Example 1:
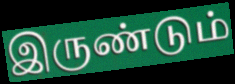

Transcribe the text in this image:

இருண்டும்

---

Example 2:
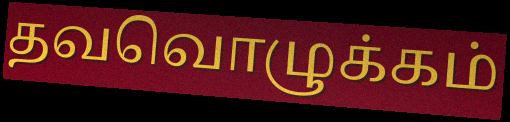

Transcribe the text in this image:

தவவொழுக்கம்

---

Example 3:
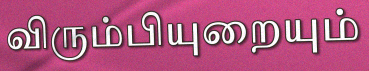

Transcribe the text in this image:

விரும்பியுறையும்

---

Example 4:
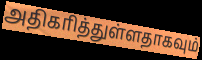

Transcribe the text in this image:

அதிகரித்துள்ளதாகவும்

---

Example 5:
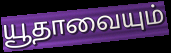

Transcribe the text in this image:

யூதாவையும்